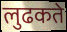
लुढकते